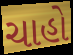
ચાહો